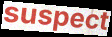
suspect